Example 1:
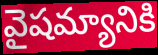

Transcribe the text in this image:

వైషమ్యానికి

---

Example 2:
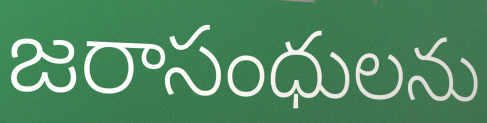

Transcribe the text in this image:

జరాసంధులను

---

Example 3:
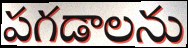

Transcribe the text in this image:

పగడాలను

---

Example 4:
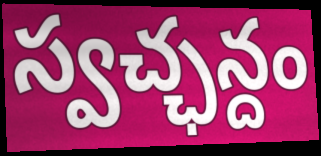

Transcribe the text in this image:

స్వచ్ఛన్దం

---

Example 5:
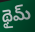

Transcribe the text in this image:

థైమ్